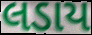
લડાય